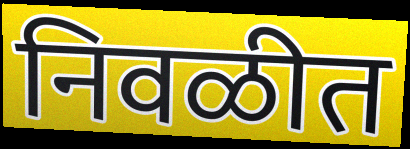
निवळीत